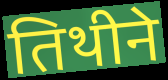
तिथीने